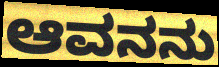
ಆವನನು